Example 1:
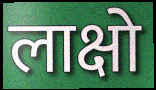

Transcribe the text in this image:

लाक्षो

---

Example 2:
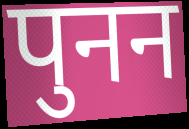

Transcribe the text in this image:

पुनन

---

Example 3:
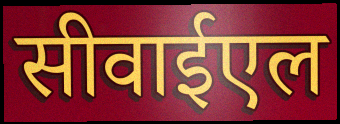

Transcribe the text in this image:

सीवाईएल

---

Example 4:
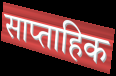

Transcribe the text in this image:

साप्ताहिक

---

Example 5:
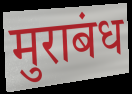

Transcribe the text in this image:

मुराबंध